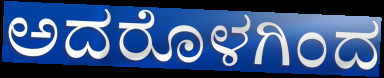
ಅದರೊಳಗಿಂದ